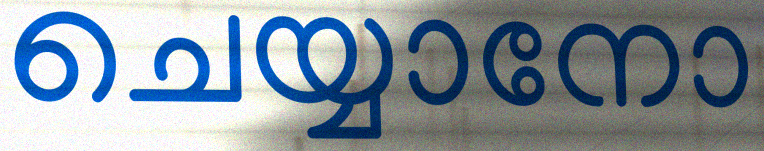
ചെയ്യാനോ